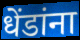
धेंडांना